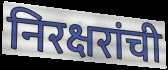
निरक्षरांची